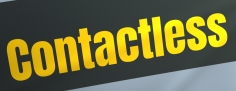
Contactless